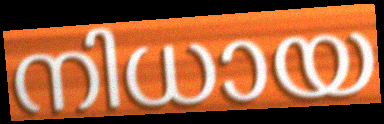
നിധായ